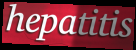
hepatitis